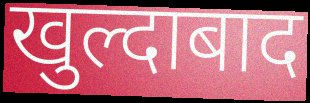
खुल्दाबाद